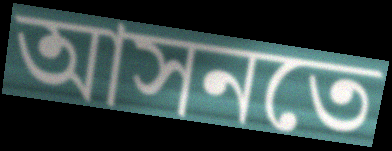
আসনতে